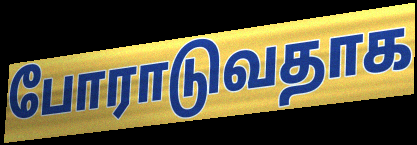
போராடுவதாக